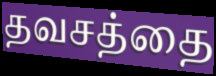
தவசத்தை